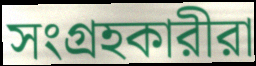
সংগ্রহকারীরা